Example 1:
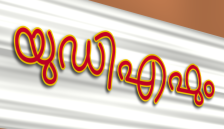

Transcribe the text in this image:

യുഡിഎഫും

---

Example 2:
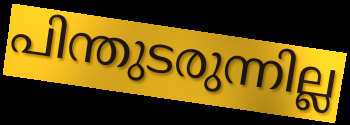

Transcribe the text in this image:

പിന്തുടരുന്നില്ല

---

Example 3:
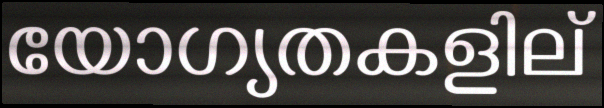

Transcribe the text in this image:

യോഗ്യതകളില്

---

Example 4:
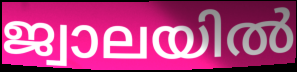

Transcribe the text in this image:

ജ്വാലയിൽ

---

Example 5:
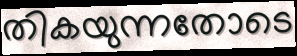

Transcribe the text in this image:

തികയുന്നതോടെ